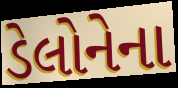
ડેલોનેના